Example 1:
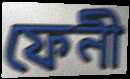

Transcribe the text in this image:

ফেনী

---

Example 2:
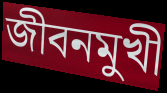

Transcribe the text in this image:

জীবনমুখী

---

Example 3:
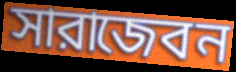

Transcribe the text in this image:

সারাজেবন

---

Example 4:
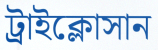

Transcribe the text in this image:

ট্রাইক্লোসান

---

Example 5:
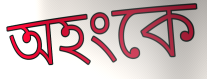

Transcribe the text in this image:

অহংকে